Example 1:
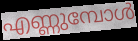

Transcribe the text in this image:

എണ്ണുമ്പോൾ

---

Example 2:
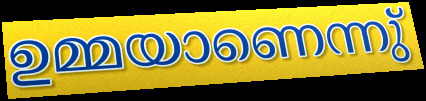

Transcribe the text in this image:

ഉമ്മയാണെന്നു്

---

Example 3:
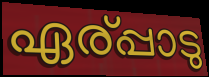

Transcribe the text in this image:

ഏര്പ്പാടു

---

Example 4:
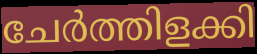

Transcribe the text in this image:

ചേർത്തിളക്കി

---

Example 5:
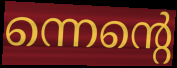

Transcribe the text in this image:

ന്നെന്റെ